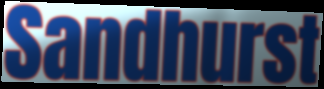
Sandhurst